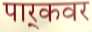
पार्कवर